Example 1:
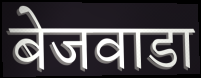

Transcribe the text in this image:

बेजवाडा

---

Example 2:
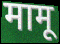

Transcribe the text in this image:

मामू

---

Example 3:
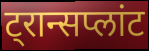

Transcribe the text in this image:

ट्रान्सप्लांट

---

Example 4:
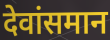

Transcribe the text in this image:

देवांसमान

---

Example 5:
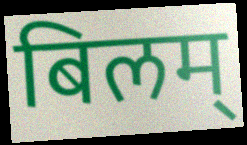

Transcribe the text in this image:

बिलम्